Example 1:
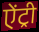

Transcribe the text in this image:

ऐंट्री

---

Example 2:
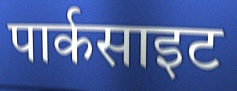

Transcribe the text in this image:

पार्कसाइट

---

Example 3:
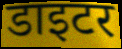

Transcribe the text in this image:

डाइटर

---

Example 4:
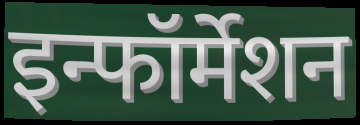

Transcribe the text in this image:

इन्फॉर्मेशन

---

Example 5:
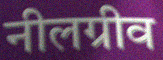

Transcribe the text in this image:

नीलग्रीव